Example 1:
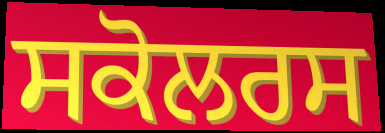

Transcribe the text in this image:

ਸਕੋਲਰਸ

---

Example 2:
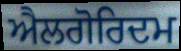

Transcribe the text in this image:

ਐਲਗੋਰਿਦਮ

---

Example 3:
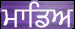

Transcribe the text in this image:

ਮਾਡਿਅ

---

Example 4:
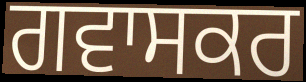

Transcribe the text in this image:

ਗਵਾਸਕਰ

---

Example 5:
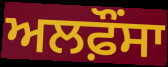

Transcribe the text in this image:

ਅਲਫ਼ੌਂਸਾ